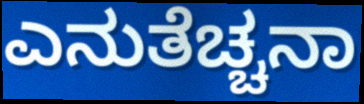
ಎನುತೆಚ್ಚನಾ